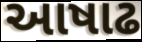
આષાઢ